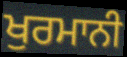
ਖੁਰਮਾਨੀ